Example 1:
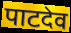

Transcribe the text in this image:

पाटदेव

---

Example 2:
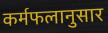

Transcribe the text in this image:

कर्मफलानुसार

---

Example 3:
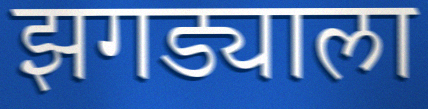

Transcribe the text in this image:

झगड्याला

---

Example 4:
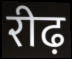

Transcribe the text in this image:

रीढ़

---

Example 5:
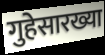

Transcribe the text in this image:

गुहेसारख्या